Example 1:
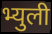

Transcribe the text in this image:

भ्युली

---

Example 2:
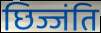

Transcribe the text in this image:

छिज्जंति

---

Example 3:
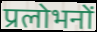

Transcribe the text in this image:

प्रलोभनों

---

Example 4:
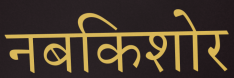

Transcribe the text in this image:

नबकिशोर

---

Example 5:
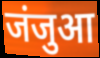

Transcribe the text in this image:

जंजुआ